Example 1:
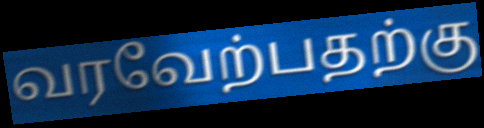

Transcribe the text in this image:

வரவேற்பதற்கு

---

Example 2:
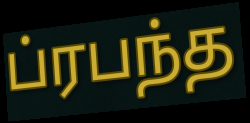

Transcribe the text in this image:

ப்ரபந்த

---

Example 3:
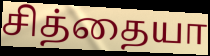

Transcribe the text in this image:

சித்தையா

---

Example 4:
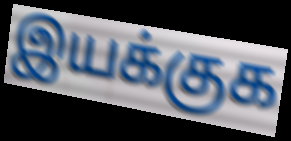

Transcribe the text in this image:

இயக்குக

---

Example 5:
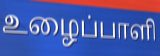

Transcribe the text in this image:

உழைப்பாளி